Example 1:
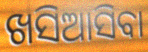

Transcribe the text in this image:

ଖସିଆସିବା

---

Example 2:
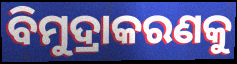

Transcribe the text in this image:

ବିମୁଦ୍ରାକରଣକୁ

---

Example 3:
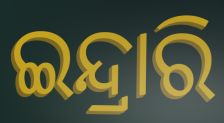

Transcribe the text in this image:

ଇନ୍ଦ୍ରାରି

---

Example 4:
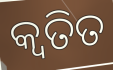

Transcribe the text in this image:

କ୍ୱତିତ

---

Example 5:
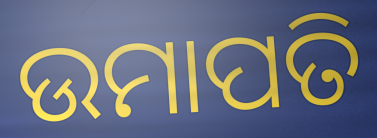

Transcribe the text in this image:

ଉମାପତି